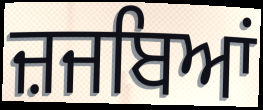
ਜ਼ਜਬਿਆਂ